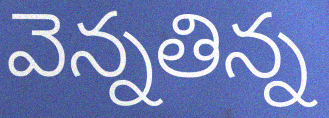
వెన్నతిన్న